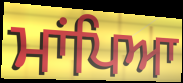
ਮਾਂਪਿਆ